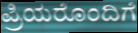
ಪ್ರಿಯರೊಂದಿಗೆ